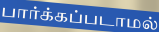
பார்க்கப்படாமல்